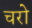
चरो